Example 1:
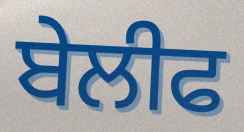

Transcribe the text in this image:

ਬੇਲੀਫ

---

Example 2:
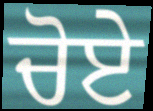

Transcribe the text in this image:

ਚੋਏ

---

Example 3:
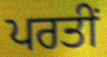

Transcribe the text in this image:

ਪਰਤੀਂ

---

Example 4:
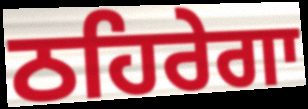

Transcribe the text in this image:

ਠਹਿਰੇਗਾ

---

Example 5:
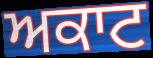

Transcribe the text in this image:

ਅਕਾਟ